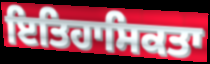
ਇਤਿਹਾਸਿਕਤਾ